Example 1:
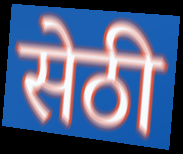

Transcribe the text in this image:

सेठी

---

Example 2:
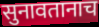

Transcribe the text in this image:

सुनावतानाच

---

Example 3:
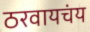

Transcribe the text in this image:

ठरवायचंय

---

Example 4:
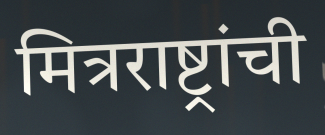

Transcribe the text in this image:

मित्रराष्ट्रांची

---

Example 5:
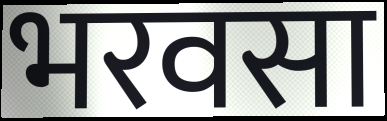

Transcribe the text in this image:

भरवसा